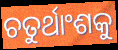
ଚତୁର୍ଥାଂଶକୁ